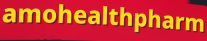
amohealthpharm